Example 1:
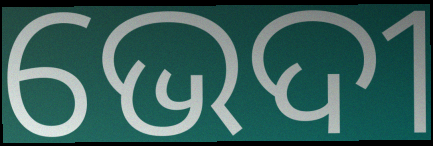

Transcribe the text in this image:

ଭେଦୀ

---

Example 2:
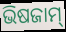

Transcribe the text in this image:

ଭିଷଜାମ୍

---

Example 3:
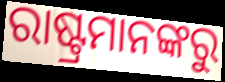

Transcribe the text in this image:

ରାଷ୍ଟ୍ରମାନଙ୍କରୁ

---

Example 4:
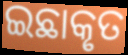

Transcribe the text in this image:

ଇଛାକୃତ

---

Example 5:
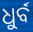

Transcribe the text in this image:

ଧୁର୍ବ